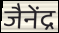
जैनेंद्र